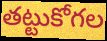
తట్టుకోగల